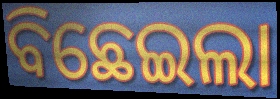
ବିଛେଇଲା